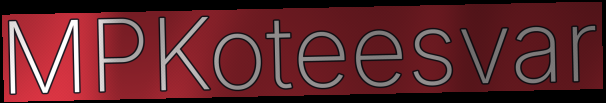
MPKoteesvar